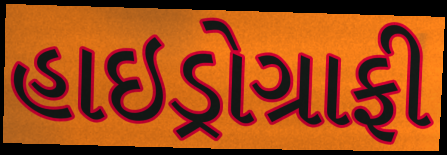
હાઇડ્રોગ્રાફી